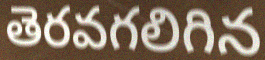
తెరవగలిగిన